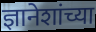
ज्ञानेशांच्या